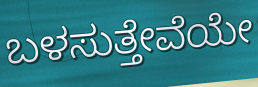
ಬಳಸುತ್ತೇವೆಯೇ